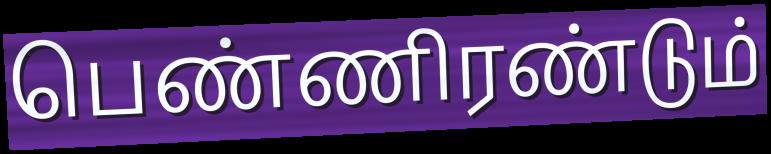
பெண்ணிரண்டும்